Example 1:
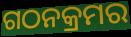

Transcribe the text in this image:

ଗଠନକ୍ରମର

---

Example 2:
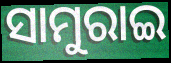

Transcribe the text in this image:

ସାମୁରାଇ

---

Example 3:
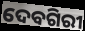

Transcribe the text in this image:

ଦେବଗିରୀ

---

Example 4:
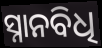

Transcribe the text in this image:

ସ୍ନାନବିଧି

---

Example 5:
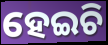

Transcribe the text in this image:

ହେଇଚି